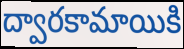
ద్వారకామాయికి